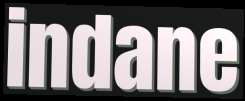
indane